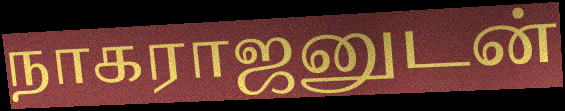
நாகராஜனுடன்